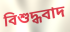
বিশুদ্ধবাদ